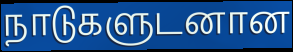
நாடுகளுடனான